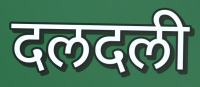
दलदली